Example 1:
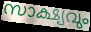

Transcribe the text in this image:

സാക്ഷ്യവും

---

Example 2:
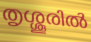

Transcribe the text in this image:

തൃശ്ശൂരിൽ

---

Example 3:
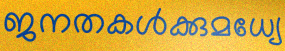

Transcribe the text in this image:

ജനതകൾക്കുമധ്യേ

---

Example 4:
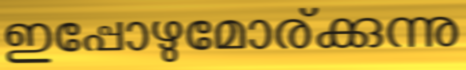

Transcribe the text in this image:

ഇപ്പോഴുമോര്ക്കുന്നു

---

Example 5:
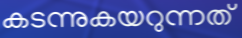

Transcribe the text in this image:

കടന്നുകയറുന്നത്